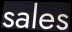
sales